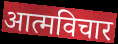
आत्मविचार